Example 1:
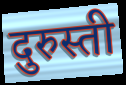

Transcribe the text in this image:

दुरुस्ती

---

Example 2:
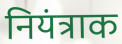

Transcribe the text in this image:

नियंत्राक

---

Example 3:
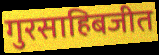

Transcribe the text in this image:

गुरसाहिबजीत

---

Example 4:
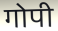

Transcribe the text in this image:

गोपी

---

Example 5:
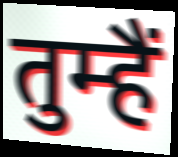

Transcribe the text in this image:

तुम्हैं